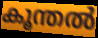
കൂന്തൽ